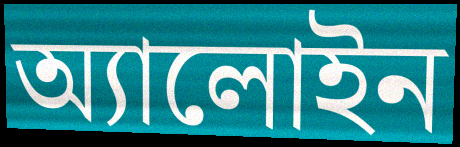
অ্যালোইন